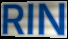
RIN